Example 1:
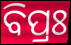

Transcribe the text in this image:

ବିପ୍ରଃ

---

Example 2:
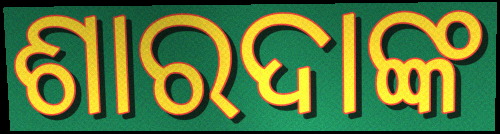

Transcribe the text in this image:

ଶାରଦାଙ୍କ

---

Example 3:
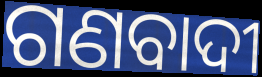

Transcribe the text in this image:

ଗଣବାଦୀ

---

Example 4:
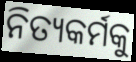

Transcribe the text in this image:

ନିତ୍ୟକର୍ମକୁ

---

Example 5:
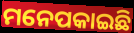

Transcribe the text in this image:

ମନେପକାଇଛି